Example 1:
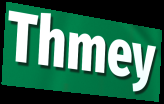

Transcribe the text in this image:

Thmey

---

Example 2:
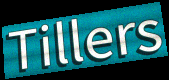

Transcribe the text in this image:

Tillers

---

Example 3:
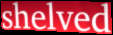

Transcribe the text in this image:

shelved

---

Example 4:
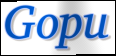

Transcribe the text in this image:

Gopu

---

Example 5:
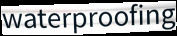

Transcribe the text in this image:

waterproofing